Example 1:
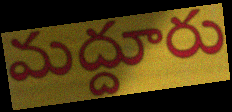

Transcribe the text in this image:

మద్దూరు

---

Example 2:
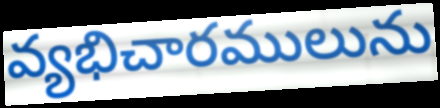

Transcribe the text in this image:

వ్యభిచారములును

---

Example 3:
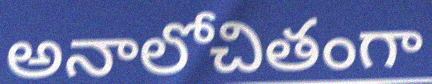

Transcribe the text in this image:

అనాలోచితంగా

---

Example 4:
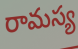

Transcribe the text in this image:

రామస్య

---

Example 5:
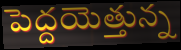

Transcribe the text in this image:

పెద్దయెత్తున్న